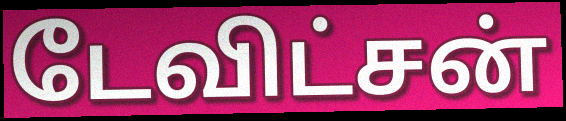
டேவிட்சன்